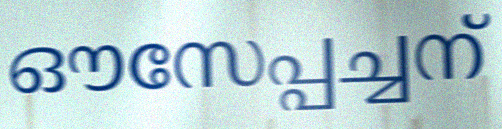
ഔസേപ്പച്ചന്